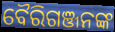
ବୈରିଗଞ୍ଜନଙ୍କ